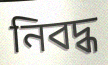
নিবদ্ধ